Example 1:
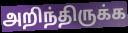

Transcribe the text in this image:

அறிந்திருக்க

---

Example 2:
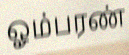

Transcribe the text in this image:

ஓம்பரண்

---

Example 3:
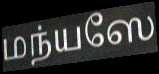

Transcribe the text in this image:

மந்யஸே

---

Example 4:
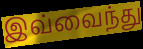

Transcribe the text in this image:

இவ்வைந்து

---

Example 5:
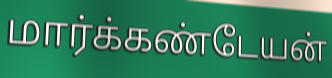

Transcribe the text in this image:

மார்க்கண்டேயன்